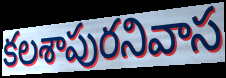
కలశాపురనివాస